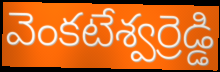
వెంకటేశ్వర్రెడ్డి